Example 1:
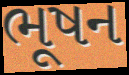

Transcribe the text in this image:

ભૂષન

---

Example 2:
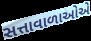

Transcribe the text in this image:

સત્તાવાળાઓએ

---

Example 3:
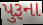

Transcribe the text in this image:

પુરૂના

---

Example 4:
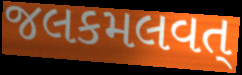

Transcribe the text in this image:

જલકમલવત્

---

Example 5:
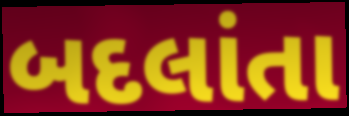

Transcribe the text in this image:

બદલાંતા